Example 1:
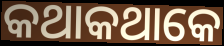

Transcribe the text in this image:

କଥାକଥାକେ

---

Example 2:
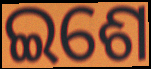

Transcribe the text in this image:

ଇଶେ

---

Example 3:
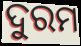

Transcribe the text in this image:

ଦୁରମ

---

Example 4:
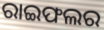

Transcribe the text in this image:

ରାଇଫଲର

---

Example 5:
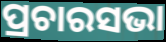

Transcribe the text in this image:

ପ୍ରଚାରସଭା